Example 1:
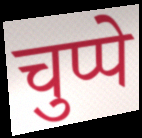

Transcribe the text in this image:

चुप्पे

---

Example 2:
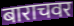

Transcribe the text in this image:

बाराचवर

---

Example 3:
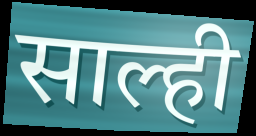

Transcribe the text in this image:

साल्ही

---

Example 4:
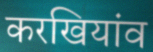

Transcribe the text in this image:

करखियांव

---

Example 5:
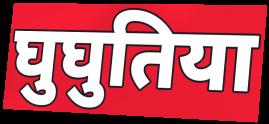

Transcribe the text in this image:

घुघुतिया